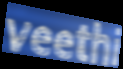
veethi